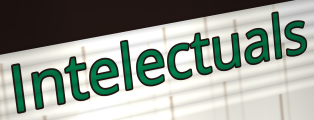
Intelectuals